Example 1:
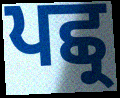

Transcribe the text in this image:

ਪਛ੍ਰ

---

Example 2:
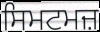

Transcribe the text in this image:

ਸਿਮਟਮਜ਼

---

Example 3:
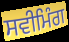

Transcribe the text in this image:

ਸਵੀਮਿੰਗ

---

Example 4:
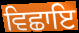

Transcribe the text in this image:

ਵਿਛਾਇ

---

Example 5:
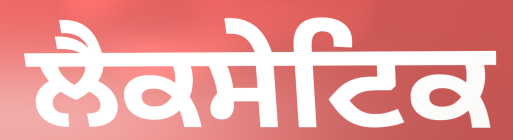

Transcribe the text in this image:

ਲੈਕਸੇਟਿਕ